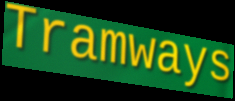
Tramways